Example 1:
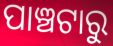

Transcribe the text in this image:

ପାଞ୍ଚଟାରୁ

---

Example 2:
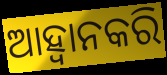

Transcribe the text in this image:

ଆହ୍ୱାନକରି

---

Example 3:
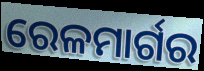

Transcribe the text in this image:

ରେଳମାର୍ଗର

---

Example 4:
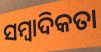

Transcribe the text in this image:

ସମ୍ବାଦିକତା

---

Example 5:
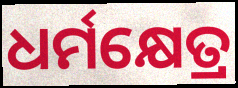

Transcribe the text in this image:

ଧର୍ମକ୍ଷେତ୍ର